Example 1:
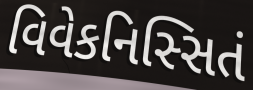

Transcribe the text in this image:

વિવેકનિસ્સિતં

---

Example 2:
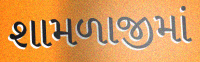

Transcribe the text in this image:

શામળાજીમાં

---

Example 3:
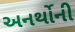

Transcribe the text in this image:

અનર્થોની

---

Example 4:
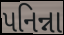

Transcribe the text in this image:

પનિન્ના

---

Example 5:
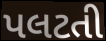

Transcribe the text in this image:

પલટતી